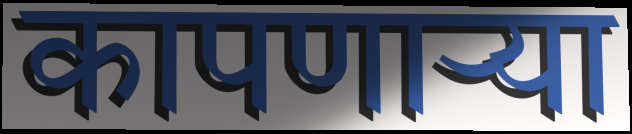
कापणाऱ्या